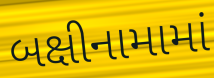
બક્ષીનામામાં